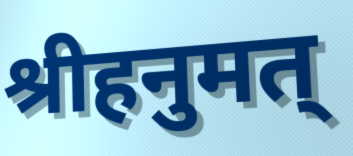
श्रीहनुमत्